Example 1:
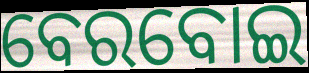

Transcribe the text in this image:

ବେରବୋଇ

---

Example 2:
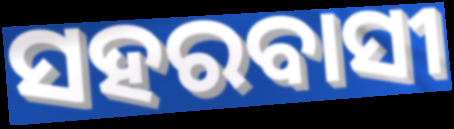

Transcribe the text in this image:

ସହରବାସୀ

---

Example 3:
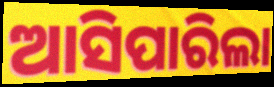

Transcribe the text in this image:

ଆସିପାରିଲା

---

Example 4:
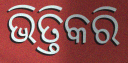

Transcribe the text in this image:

ଭିତ୍ତିକରି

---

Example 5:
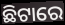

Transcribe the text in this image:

ଛିଟାରେ